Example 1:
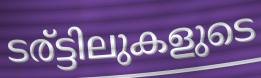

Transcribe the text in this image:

ടര്ട്ടിലുകളുടെ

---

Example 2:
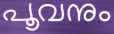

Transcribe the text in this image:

പൂവനും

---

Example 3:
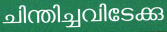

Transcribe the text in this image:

ചിന്തിച്ചവിടേക്കു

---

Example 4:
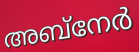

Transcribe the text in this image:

അബ്നേർ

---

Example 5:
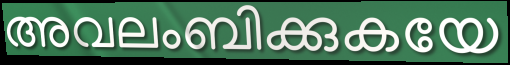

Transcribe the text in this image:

അവലംബിക്കുകയേ